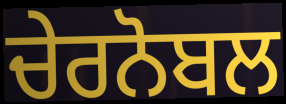
ਚੇਰਨੋਬਲ